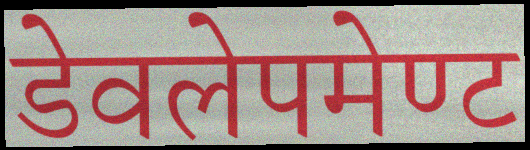
डेवलेपमेण्ट